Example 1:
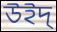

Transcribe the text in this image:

উইদ্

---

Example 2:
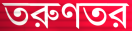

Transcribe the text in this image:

তরুণতর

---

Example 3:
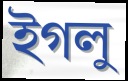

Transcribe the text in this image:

ইগলু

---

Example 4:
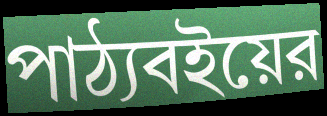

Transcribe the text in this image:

পাঠ্যবইয়ের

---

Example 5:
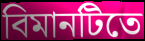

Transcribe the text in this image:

বিমানটিতে